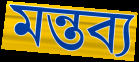
মন্তব্য়